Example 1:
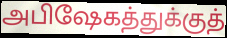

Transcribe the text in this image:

அபிஷேகத்துக்குத்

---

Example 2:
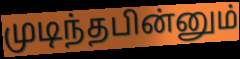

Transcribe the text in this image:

முடிந்தபின்னும்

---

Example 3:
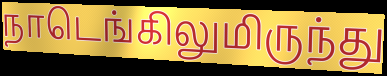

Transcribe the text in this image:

நாடெங்கிலுமிருந்து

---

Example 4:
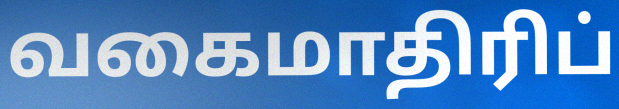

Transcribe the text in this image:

வகைமாதிரிப்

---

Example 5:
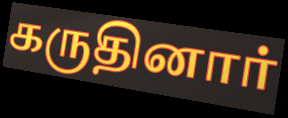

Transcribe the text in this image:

கருதினார்